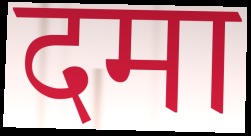
दमा